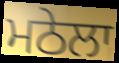
ਮਠੇਲਾ